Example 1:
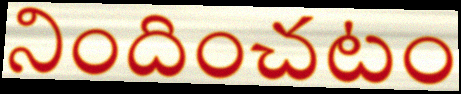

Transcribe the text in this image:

నిందించటం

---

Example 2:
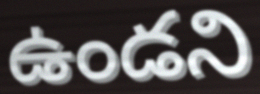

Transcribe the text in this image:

ఉండని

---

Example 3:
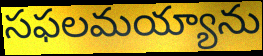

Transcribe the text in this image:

సఫలమయ్యాను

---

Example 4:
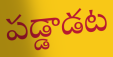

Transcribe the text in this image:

పడ్డాడట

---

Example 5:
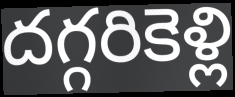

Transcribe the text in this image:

దగ్గరికెళ్లి